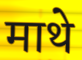
माथे